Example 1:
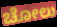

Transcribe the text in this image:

ಚೋಲು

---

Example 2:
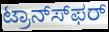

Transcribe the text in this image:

ಟ್ರಾನ್ಸ್‍ಫರ್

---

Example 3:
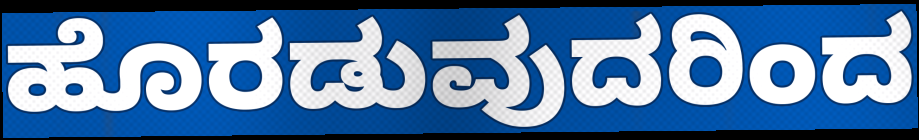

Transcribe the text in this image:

ಹೊರಡುವುದರಿಂದ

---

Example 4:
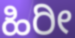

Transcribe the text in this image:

ಹಿರೀ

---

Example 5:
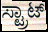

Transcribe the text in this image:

ಸ್ಟ್ರಾಟ್